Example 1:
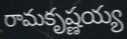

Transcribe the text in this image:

రామకృష్ణయ్య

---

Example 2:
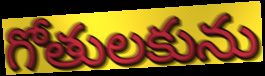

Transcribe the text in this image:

గోతులకును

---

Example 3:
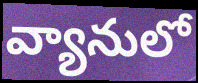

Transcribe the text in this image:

వ్యానులో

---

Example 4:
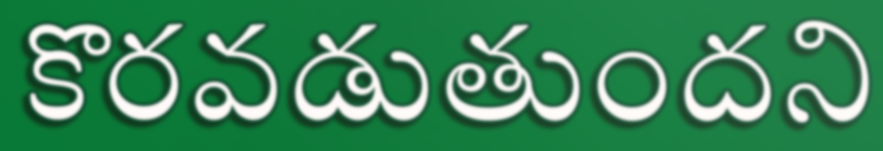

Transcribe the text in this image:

కొరవడుతుందని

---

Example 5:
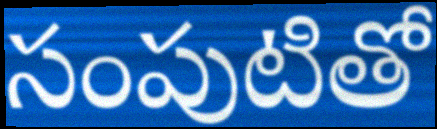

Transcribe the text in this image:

సంపుటితో